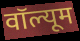
वॉल्यूम